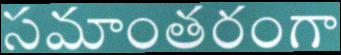
సమాంతరంగా